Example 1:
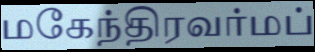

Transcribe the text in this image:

மகேந்திரவர்மப்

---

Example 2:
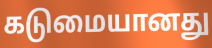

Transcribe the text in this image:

கடுமையானது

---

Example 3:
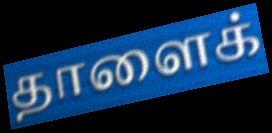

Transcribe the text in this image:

தாளைக்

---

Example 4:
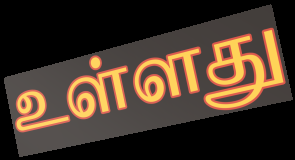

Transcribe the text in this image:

உள்ளது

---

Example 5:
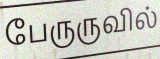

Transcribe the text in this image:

பேருருவில்